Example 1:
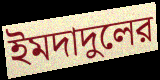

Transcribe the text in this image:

ইমদাদুলের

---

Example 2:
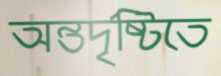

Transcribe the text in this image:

অন্তর্দৃষ্টিতে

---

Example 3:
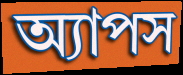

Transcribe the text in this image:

অ্যাপস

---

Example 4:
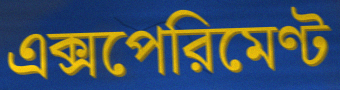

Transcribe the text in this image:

এক্সপেরিমেণ্ট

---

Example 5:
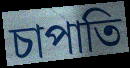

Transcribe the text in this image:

চাপাতি